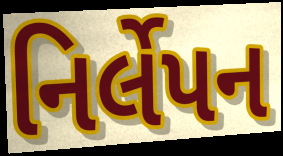
નિર્લેપન